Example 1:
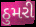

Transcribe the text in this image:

ઠુમરી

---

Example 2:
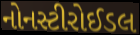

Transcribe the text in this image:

નોનસ્ટીરોઈડલ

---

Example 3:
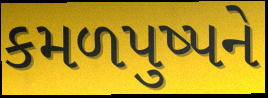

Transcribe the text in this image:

કમળપુષ્પને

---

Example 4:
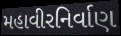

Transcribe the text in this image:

મહાવીરનિર્વાણ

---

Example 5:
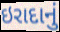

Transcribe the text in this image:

ઇરાદાનું